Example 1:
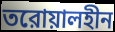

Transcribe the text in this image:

তরোয়ালহীন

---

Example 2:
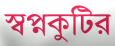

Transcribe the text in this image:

স্বপ্নকুটির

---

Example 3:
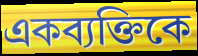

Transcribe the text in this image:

একব্যক্তিকে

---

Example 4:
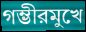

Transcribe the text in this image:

গম্ভীরমুখে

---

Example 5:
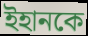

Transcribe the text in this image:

ইহানকে